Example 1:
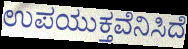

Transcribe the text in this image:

ಉಪಯುಕ್ತವೆನಿಸಿದೆ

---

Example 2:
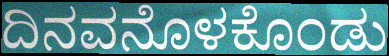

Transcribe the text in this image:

ದಿನವನೊಳಕೊಂಡು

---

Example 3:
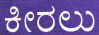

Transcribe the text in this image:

ಕೀರಲು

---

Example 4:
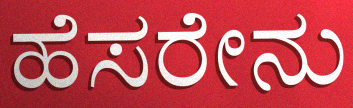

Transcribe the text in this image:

ಹೆಸರೇನು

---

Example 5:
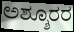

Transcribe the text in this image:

ಅಶ್ಶೂರರ